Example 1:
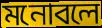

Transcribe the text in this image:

মনোবলে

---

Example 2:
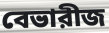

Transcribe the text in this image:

বেভারীজ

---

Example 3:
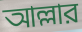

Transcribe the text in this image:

আল্লার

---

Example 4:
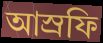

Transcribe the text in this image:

আস্রফি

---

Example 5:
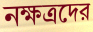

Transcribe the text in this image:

নক্ষত্রদের